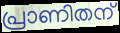
പ്രാണിതന്